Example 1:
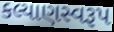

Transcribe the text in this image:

કલ્યાણસ્વરૂપ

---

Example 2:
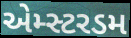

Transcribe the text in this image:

એમ્સ્ટરડમ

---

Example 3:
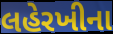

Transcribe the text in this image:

લહેરખીના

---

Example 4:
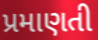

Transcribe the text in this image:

પ્રમાણતી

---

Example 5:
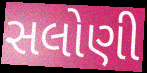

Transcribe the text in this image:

સલોણી